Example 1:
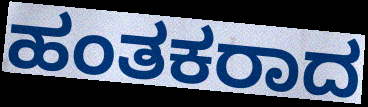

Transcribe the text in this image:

ಹಂತಕರಾದ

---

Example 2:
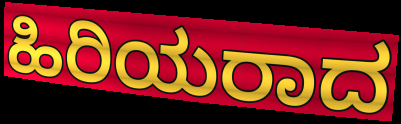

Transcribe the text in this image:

ಹಿರಿಯರಾದ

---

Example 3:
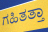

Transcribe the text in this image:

ಗಹಿತತ್ತಾ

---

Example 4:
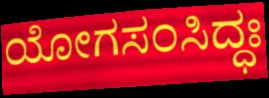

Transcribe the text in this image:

ಯೋಗಸಂಸಿದ್ಧಃ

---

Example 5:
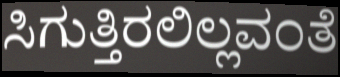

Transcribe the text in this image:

ಸಿಗುತ್ತಿರಲಿಲ್ಲವಂತೆ